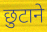
छुटाने